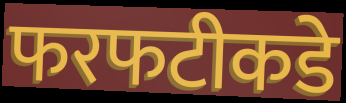
फरफटीकडे